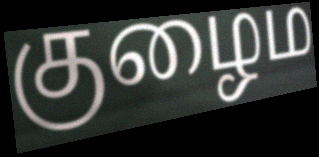
குழைம